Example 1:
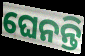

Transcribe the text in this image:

ଘେନନ୍ତି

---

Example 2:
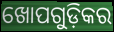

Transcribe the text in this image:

ଖୋପଗୁଡ଼ିକର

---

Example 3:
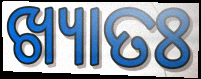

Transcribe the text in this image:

ଖ୍ୟାତଃ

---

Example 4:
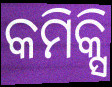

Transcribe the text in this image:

କମିକ୍ସି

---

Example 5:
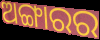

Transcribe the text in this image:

ଅଙ୍ଗାରର